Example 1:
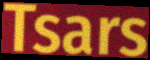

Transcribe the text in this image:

Tsars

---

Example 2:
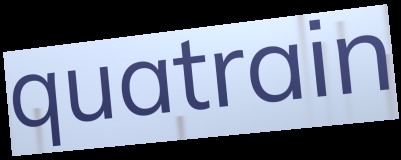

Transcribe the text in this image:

quatrain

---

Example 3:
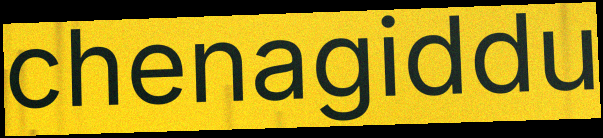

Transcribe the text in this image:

chenagiddu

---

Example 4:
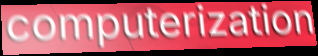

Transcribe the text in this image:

computerization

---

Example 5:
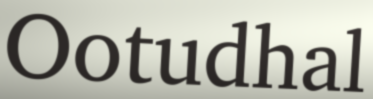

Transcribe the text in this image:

Ootudhal